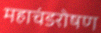
महाचंडरोषण